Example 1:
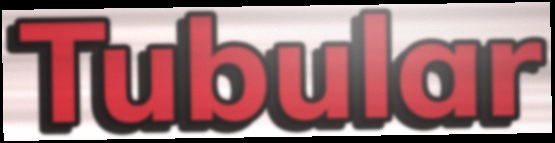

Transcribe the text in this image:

Tubular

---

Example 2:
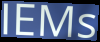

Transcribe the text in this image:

IEMs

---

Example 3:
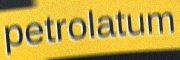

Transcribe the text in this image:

petrolatum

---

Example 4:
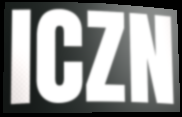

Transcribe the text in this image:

ICZN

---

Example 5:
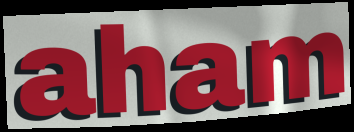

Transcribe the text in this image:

aham